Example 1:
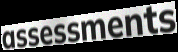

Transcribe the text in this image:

assessments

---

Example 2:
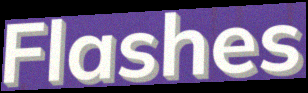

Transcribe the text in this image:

Flashes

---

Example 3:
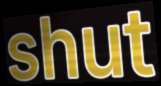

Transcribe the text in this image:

shut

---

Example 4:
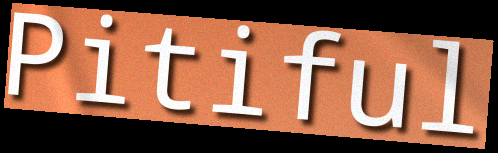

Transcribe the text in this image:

Pitiful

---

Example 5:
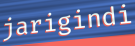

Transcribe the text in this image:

jarigindi